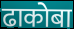
ढाकोबा